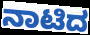
ನಾಟಿದ